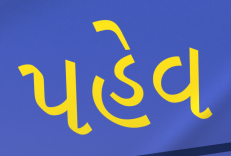
પહેવ